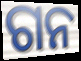
ଗନ